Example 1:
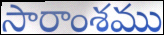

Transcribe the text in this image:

సారాంశము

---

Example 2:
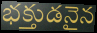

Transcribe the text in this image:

భక్తుడనైన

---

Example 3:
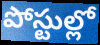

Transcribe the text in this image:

పోస్టుల్లో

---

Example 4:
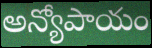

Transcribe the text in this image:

అన్యోపాయం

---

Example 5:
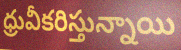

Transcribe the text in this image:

ధ్రువీకరిస్తున్నాయి